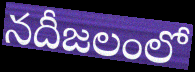
నదీజలంలో